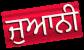
ਜੁਆਨੀ